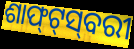
ଶାଫ୍‍ଟ୍‍ସ୍‍ବରୀ